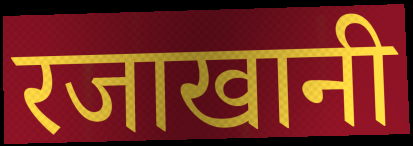
रजाखानी